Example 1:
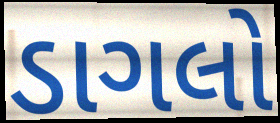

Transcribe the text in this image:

ડાગલો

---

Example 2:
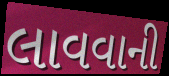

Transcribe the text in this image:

લાવવાની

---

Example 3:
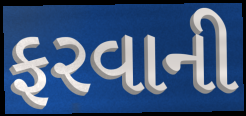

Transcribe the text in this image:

ફરવાની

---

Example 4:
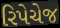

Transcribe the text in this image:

રિપેચેજ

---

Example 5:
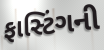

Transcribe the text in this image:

ફાસ્ટિંગની